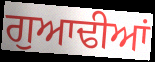
ਗੁਆਢੀਆਂ